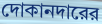
দোকানদারের